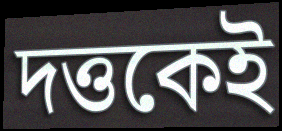
দত্তকেই